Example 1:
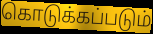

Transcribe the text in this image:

கொடுக்கப்படும்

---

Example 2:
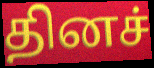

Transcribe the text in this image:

தினச்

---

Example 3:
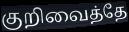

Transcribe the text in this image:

குறிவைத்தே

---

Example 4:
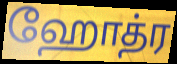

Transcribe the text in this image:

ஹோத்ர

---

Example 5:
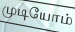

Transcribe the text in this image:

முடியோம்